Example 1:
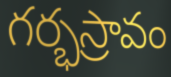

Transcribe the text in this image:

గర్భస్రావం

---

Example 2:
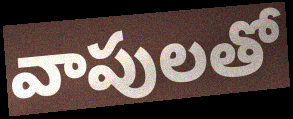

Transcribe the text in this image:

వాపులతో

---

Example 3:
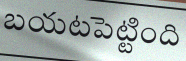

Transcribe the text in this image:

బయటపెట్టింది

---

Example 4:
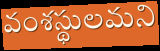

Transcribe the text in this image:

వంశస్థులమని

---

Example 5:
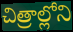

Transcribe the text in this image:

చిత్రాల్లోని